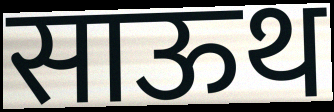
साऊथ